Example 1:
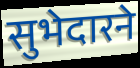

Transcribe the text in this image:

सुभेदारने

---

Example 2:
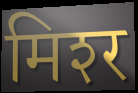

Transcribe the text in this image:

मिश्र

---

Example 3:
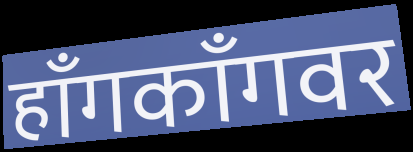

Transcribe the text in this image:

हॉंगकॉंगवर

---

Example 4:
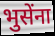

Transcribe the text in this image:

भुसेंना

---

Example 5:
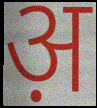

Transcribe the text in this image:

अ़